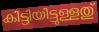
കിട്ടിയിട്ടുള്ളതു്